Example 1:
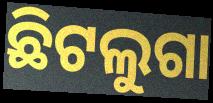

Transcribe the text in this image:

ଛିଟଲୁଗା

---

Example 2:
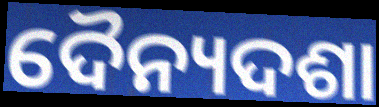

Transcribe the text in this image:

ଦୈନ୍ୟଦଶା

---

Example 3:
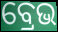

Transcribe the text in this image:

ବ୍ରେଭ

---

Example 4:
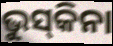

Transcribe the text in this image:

ଭୁସ୍‌କିନା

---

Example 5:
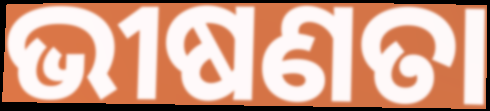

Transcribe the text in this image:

ଭୀଷଣତା